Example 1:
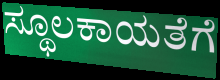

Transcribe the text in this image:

ಸ್ಥೂಲಕಾಯತೆಗೆ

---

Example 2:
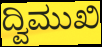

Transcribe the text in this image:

ದ್ವಿಮುಖಿ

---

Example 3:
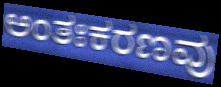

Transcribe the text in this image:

ಅಂತಃಕರಣವು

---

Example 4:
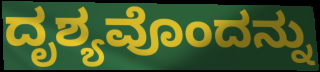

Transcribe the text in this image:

ದೃಶ್ಯವೊಂದನ್ನು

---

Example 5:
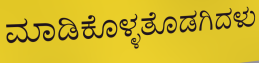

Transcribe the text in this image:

ಮಾಡಿಕೊಳ್ಳತೊಡಗಿದಳು